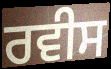
ਰਵੀਸ